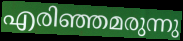
എരിഞ്ഞമരുന്നു